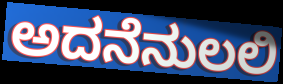
ಅದನೆನುಲಲಿ